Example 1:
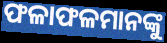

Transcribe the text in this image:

ଫଳାଫଳମାନଙ୍କୁ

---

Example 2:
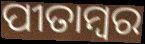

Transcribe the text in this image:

ପୀତାମ୍ୱର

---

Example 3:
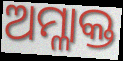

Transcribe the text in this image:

ଅମ୍ଳାକ୍ତ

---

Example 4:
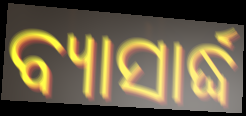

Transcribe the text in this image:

ବ୍ୟାସାର୍ଦ୍ଧ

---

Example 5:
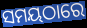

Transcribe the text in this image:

ସମୟଠାରେ